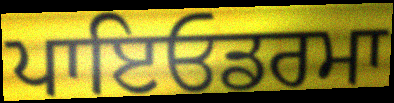
ਪਾਇਓਡਰਮਾ